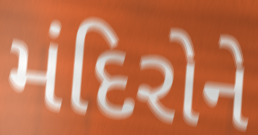
મંદિરોને